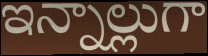
ఇన్నాల్లుగా